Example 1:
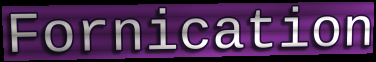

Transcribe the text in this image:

Fornication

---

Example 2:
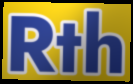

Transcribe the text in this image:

Rth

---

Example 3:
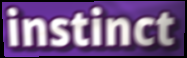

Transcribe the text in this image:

instinct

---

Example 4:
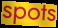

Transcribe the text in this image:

spots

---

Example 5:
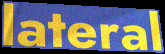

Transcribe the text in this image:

lateral